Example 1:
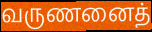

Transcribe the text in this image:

வருணனைத்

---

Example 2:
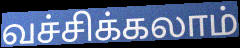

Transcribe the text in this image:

வச்சிக்கலாம்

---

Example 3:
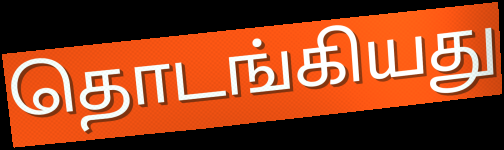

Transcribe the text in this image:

தொடங்கியது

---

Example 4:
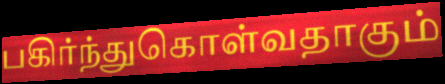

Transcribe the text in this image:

பகிர்ந்துகொள்வதாகும்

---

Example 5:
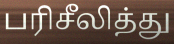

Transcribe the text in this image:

பரிசீலித்து